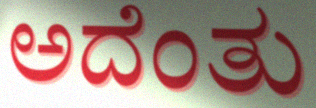
ಅದೆಂತು